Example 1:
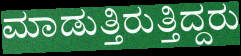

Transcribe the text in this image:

ಮಾಡುತ್ತಿರುತ್ತಿದ್ದರು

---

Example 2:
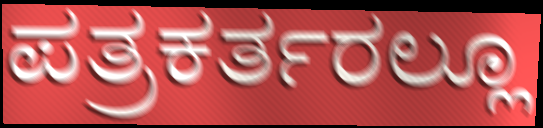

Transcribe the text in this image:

ಪತ್ರಕರ್ತರಲ್ಲೂ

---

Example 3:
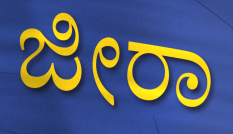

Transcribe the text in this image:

ಜೀರಾ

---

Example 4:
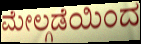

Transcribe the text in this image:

ಮೇಲ್ಗಡೆಯಿಂದ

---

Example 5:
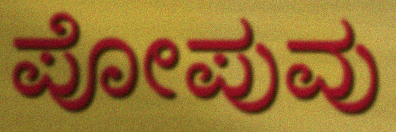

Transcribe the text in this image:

ಪೋಪುವು